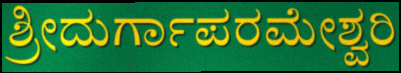
ಶ್ರೀದುರ್ಗಾಪರಮೇಶ್ವರಿ